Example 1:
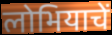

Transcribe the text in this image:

लोभियाचें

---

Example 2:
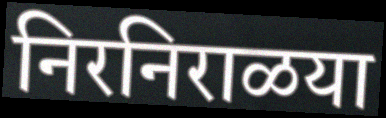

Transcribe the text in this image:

निरनिराळया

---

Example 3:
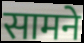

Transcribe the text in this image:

सामने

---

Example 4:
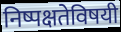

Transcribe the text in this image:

निष्पक्षतेविषयी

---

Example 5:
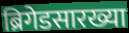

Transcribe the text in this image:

ब्रिगेडसारख्या